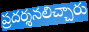
ప్రదర్శనలిచ్చారు